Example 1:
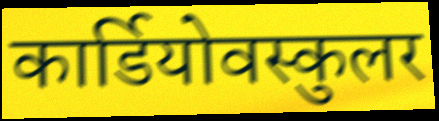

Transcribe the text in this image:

कार्डियोवस्कुलर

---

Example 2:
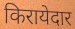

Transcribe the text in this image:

किरायेदार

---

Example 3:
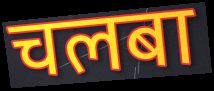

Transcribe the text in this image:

चलबा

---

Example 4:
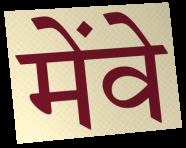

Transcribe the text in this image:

मेंवे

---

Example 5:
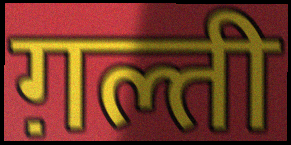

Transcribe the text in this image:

ग़ल्ती